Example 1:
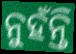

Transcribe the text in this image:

ନୁହଁନ୍ତି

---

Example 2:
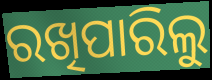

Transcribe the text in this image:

ରଖିପାରିଲୁ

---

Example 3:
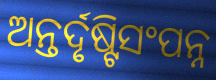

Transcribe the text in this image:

ଅନ୍ତର୍ଦୃଷ୍ଟିସଂପନ୍ନ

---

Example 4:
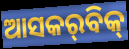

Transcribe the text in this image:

ଆସକର୍‌ବିକ୍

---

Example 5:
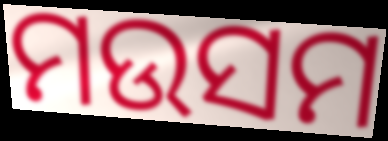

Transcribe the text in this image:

ମଉସମ